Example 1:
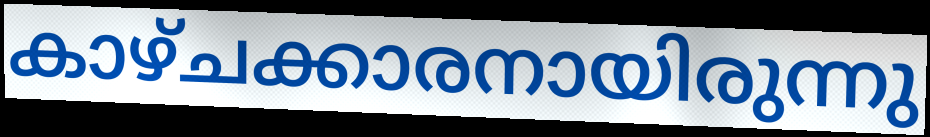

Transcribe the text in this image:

കാഴ്ചക്കാരനായിരുന്നു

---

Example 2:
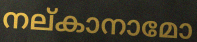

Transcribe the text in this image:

നല്കാനാമോ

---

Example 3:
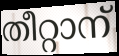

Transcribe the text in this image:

തീറ്റാന്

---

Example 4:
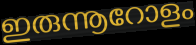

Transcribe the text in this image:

ഇരുന്നൂറോളം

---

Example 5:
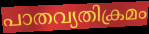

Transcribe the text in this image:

പാതവ്യതിക്രമം